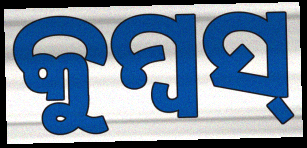
କୁମ୍ବସ୍